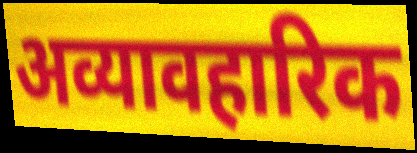
अव्यावहारिक